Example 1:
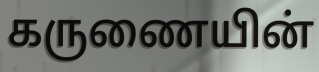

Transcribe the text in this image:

கருணையின்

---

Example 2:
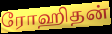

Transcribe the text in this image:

ரோஹிதன்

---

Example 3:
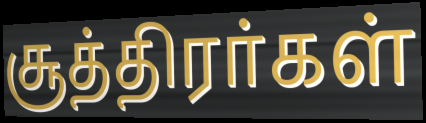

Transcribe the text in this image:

சூத்திரர்கள்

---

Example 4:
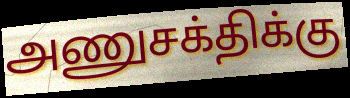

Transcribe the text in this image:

அணுசக்திக்கு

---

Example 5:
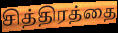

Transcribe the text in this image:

சித்திரத்தை